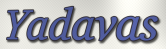
Yadavas